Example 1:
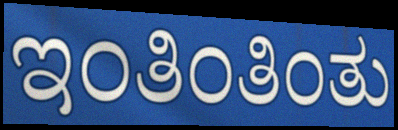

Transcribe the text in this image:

ಇಂತಿಂತಿಂತು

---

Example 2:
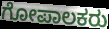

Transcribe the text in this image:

ಗೋಪಾಲಕರು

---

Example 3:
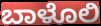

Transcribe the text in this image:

ಬಾಳೊಲಿ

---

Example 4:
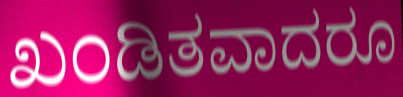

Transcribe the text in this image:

ಖಂಡಿತವಾದರೂ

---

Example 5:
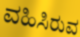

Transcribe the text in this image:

ವಹಿಸಿರುವ